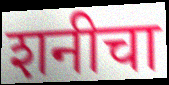
शनीचा